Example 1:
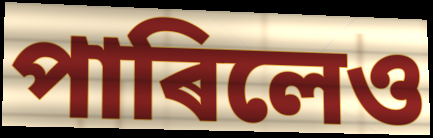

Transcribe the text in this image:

পাৰিলেও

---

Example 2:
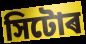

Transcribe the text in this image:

সিটোৰ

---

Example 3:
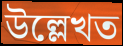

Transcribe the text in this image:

উল্লেখত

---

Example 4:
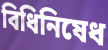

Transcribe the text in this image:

বিধিনিষেধ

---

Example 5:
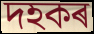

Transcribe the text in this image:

দহকৰ